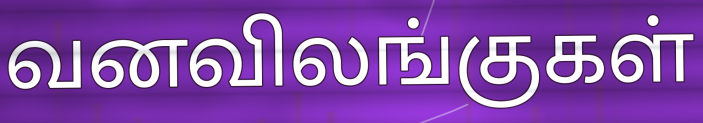
வனவிலங்குகள்